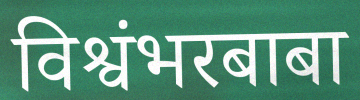
विश्वंभरबाबा